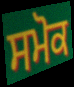
ਸਮੋਕ